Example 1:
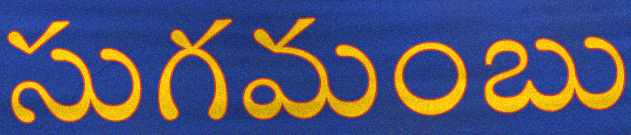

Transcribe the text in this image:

సుగమంబు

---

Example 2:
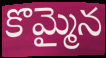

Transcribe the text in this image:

కొమ్మైన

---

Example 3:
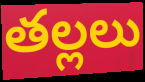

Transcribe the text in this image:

తల్లలు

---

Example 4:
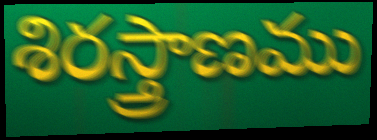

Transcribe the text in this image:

శిరస్త్రాణము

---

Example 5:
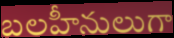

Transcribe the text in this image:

బలహీనులుగా